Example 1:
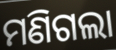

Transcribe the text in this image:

ମଣିଗଲା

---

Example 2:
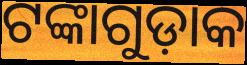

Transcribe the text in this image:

ଟଙ୍କାଗୁଡ଼ାକ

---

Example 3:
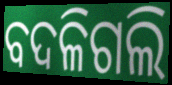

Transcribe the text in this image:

ବଦଳିଗଲି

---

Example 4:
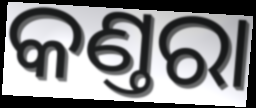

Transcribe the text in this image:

କଣ୍ତରା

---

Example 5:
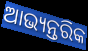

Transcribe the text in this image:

ଆଭ୍ୟନ୍ତରିକ